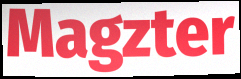
Magzter